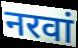
नरवां